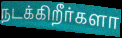
நடக்கிறீர்களா